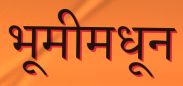
भूमीमधून